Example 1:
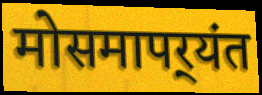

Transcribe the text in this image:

मोसमापर्यंत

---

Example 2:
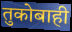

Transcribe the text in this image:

तुकोबाही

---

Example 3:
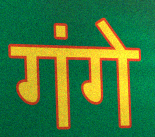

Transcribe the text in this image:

गंगे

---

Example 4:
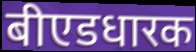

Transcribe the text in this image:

बीएडधारक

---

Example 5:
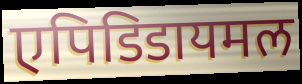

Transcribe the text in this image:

एपिडिडायमल